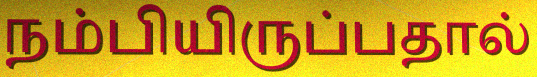
நம்பியிருப்பதால்